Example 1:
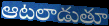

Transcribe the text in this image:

ఆటలాడుతూ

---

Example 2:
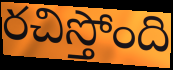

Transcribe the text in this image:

రచిస్తోంది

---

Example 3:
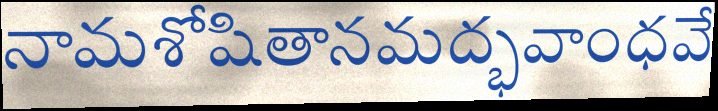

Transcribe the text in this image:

నామశోషితానమద్భవాంధవే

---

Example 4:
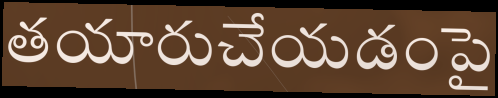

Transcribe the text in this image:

తయారుచేయడంపై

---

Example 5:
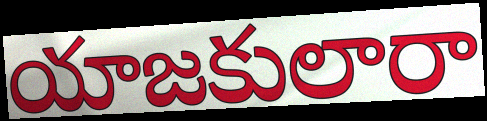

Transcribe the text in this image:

యాజకులారా